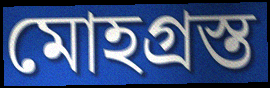
মোহগ্রস্ত